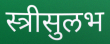
स्त्रीसुलभ